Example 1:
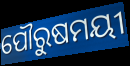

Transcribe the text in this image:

ପୌରୁଷମୟୀ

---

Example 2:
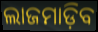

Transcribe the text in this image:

ଲାଜମାଡ଼ିବ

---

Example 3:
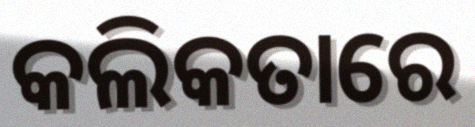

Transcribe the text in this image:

କଲିକତାରେ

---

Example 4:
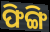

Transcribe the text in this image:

ଫିଙ୍ଗି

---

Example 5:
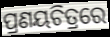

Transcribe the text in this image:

ପ୍ରଣୟଚିତ୍ରରେ